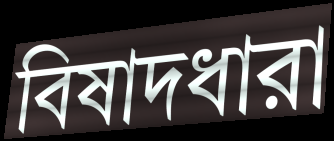
বিষাদধারা